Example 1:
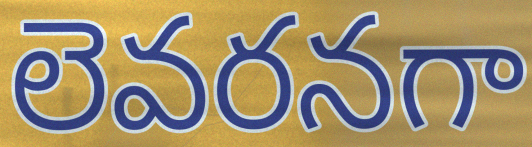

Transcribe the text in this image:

లెవరనగా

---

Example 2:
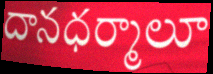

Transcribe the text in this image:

దానధర్మాలూ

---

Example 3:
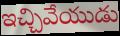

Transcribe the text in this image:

ఇచ్చివేయుడు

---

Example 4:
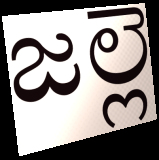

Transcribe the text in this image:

జల్లె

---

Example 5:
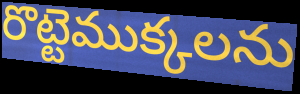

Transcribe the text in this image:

రొట్టెముక్కలను